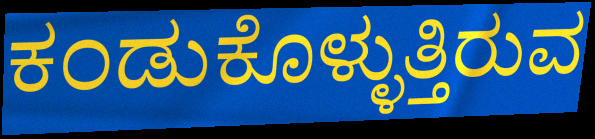
ಕಂಡುಕೊಳ್ಳುತ್ತಿರುವ